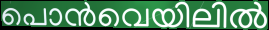
പൊൻവെയിലിൽ